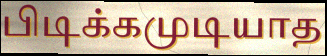
பிடிக்கமுடியாத